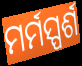
ମର୍ମସ୍ପର୍ଶ